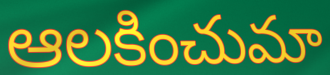
ఆలకించుమా